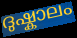
ദുഷ്കാലം